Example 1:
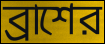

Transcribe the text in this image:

ব্রাশের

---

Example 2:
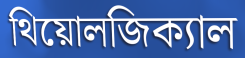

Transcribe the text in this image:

থিয়োলজিক্যাল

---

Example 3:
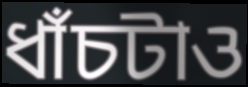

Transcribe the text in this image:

ধাঁচটাও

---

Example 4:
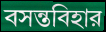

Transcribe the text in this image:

বসন্তবিহার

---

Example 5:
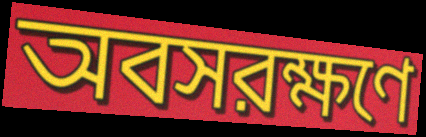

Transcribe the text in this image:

অবসরক্ষণে